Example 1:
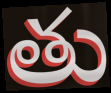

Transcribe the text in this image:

తు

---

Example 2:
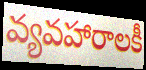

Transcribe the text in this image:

వ్యవహారాలకీ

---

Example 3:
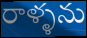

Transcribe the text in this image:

రాళ్ళను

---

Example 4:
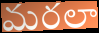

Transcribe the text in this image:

మరలా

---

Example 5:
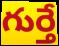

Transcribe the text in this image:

గుర్తే